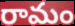
రామం